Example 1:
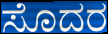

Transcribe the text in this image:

ಸೊದರ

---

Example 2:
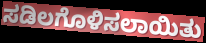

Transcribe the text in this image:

ಸಡಿಲಗೊಳಿಸಲಾಯಿತು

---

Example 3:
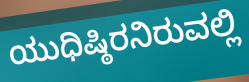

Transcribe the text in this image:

ಯುಧಿಷ್ಠಿರನಿರುವಲ್ಲಿ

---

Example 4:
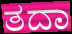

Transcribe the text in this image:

ತದಾ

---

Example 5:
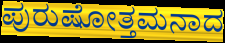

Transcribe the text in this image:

ಪುರುಷೋತ್ತಮನಾದ